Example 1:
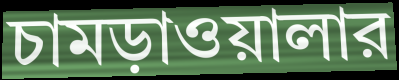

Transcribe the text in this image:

চামড়াওয়ালার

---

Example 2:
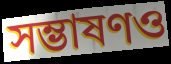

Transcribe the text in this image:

সম্ভাষণও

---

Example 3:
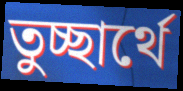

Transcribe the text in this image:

তুচ্ছার্থে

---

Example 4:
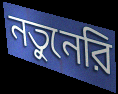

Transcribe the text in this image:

নতুনেরি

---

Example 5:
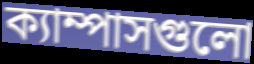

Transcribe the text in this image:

ক্যাম্পাসগুলো